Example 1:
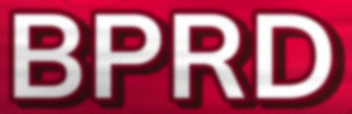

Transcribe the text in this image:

BPRD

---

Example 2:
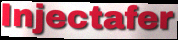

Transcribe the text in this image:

Injectafer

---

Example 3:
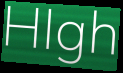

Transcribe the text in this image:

HIgh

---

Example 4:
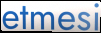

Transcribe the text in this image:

etmesi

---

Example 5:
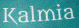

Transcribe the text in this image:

Kalmia